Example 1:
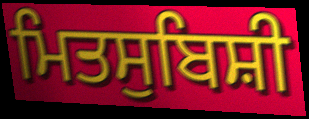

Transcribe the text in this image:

ਮਿਤਸੁਬਿਸ਼ੀ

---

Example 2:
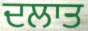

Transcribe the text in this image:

ਦਲਾਤ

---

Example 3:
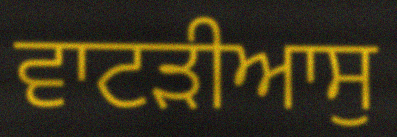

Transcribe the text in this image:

ਵਾਟੜੀਆਸੁ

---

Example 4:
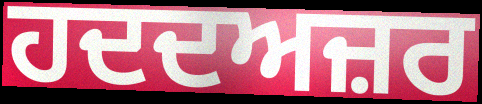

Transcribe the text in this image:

ਹਦਦਅਜ਼ਰ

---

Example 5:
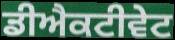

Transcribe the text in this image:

ਡੀਐਕਟੀਵੇਟ